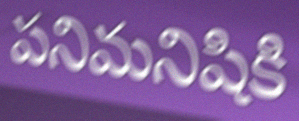
పనిమనిషికి